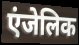
एंजेलिक